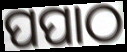
ପପାଠ